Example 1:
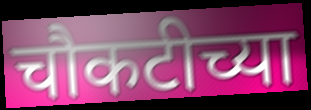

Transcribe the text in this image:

चौकटीच्या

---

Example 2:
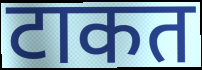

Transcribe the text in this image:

टाकत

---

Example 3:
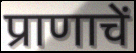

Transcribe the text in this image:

प्राणाचें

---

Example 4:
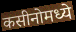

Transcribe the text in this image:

कसीनोमध्ये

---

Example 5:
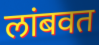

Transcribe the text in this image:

लांबवत